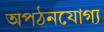
অপঠনযোগ্য